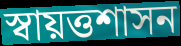
স্বায়ত্তশাসন